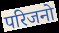
परिजनो